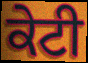
ਕੇਟੀ